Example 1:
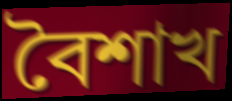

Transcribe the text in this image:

বৈশাখ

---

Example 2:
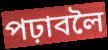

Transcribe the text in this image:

পঢ়াবলৈ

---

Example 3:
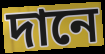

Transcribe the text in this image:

দানে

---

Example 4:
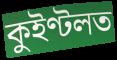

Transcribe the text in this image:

কুইণ্টলত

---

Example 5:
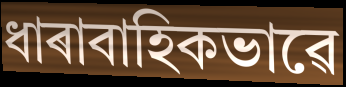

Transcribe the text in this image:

ধাৰাবাহিকভাৱে